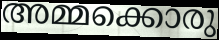
അമ്മക്കൊരു